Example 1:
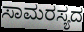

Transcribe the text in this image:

ಸಾಮರಸ್ಯದ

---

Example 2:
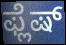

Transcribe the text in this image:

ಫ್ಲೆಷ್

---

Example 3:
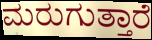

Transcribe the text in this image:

ಮರುಗುತ್ತಾರೆ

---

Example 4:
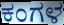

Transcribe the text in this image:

ಕಂಗಳ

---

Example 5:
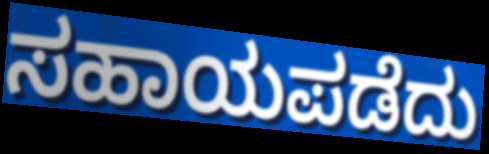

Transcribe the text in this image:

ಸಹಾಯಪಡೆದು